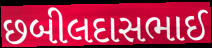
છબીલદાસભાઈ